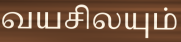
வயசிலயும்